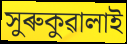
সুৰুকুৱালাই